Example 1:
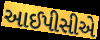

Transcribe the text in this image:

આઈપીસીએ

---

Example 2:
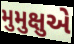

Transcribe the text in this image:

મુમુક્ષુએ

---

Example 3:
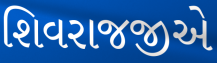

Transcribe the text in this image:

શિવરાજજીએ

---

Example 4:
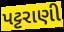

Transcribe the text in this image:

પટ્ટરાણી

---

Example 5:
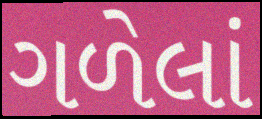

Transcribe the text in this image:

ગળેલાં